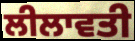
ਲੀਲਾਵਤੀ